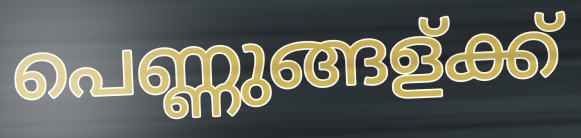
പെണ്ണുങ്ങള്ക്ക്